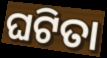
ଘଟିତା